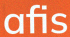
afis